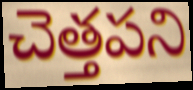
చెత్తపని